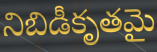
నిబిడీకృతమై